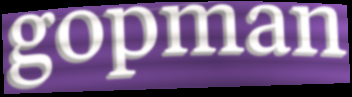
gopman